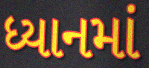
ધ્યાનમાં